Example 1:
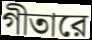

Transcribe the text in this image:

গীতারে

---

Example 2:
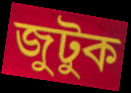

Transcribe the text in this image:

জুটুক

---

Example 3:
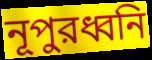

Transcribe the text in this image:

নূপুরধ্বনি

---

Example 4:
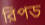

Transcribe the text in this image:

রিপড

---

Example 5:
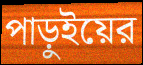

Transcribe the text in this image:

পাড়ুইয়ের